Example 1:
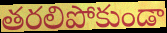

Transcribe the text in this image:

తరలిపోకుండా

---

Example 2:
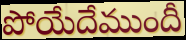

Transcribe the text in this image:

పోయేదేముందీ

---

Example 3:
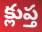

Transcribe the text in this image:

క్లుప్త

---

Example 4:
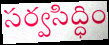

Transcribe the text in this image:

సర్వసిద్ధిం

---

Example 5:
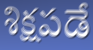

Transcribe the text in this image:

శిక్షపడే